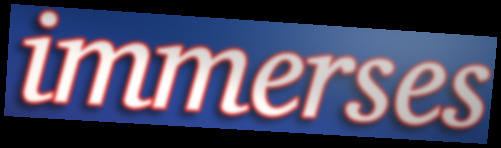
immerses